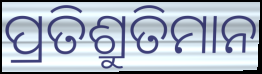
ପ୍ରତିଶ୍ରୁତିମାନ